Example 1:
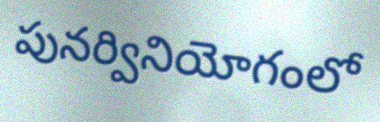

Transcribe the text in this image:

పునర్వినియోగంలో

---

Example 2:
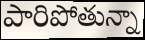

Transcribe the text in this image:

పారిపోతున్నా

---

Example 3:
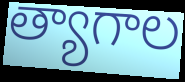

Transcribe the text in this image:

త్యాగాల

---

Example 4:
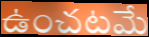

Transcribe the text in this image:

ఉంచటమే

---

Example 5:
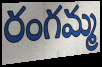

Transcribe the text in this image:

రంగమ్మ